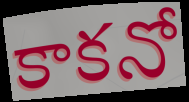
కాకనో